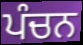
ਪੰਚਨ